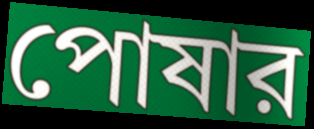
পোষার